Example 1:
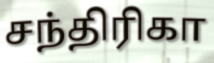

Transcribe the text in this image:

சந்திரிகா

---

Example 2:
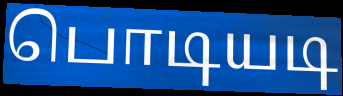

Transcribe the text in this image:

பொடியடி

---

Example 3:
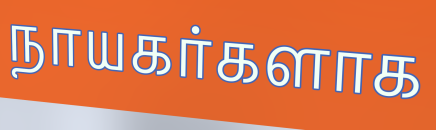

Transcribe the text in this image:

நாயகர்களாக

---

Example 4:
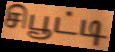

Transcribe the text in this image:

சிபூட்டி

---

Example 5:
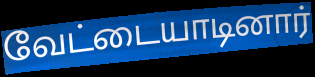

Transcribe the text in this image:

வேட்டையாடினார்